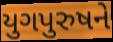
યુગપુરુષને